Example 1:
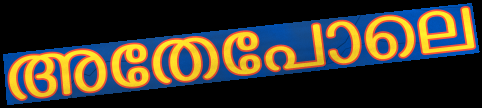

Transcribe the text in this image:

അതേപോലെ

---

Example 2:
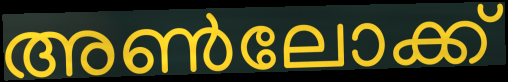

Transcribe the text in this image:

അൺലോക്ക്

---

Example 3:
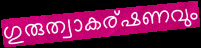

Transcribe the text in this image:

ഗുരുത്വാകര്ഷണവും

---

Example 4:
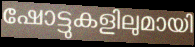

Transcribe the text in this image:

ഷോട്ടുകളിലുമായി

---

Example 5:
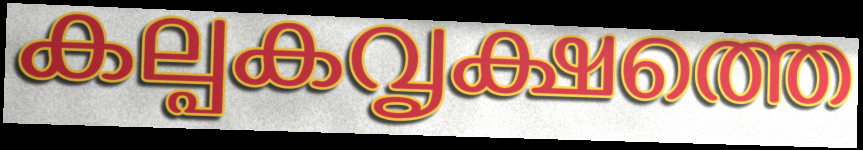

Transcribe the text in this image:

കല്പകവൃക്ഷത്തെ